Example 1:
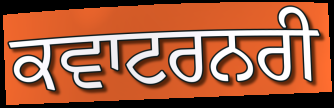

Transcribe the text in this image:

ਕਵਾਟਰਨਰੀ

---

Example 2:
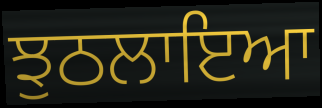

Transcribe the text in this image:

ਝੁਠਲਾਇਆ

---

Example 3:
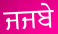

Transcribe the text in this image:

ਜਜਬੇ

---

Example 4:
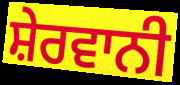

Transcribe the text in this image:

ਸ਼ੇਰਵਾਨੀ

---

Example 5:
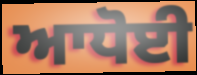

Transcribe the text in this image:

ਆਧੋਈ